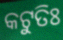
କଟୁତିଃ